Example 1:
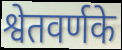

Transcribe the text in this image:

श्वेतवर्णके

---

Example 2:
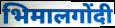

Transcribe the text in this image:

भिमालगोंदी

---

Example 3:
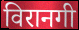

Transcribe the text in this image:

विरानगी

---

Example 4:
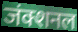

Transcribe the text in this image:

जंक्शनल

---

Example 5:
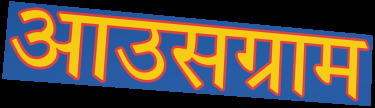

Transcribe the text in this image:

आउसग्राम